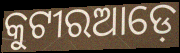
କୁଟୀରଆଡ଼େ